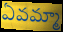
ఏవమ్మా